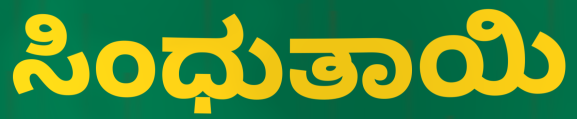
ಸಿಂಧುತಾಯಿ